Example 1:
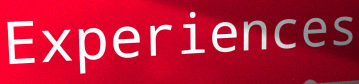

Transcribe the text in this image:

Experiences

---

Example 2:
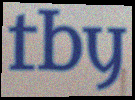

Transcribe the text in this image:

tby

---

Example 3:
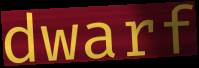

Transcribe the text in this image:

dwarf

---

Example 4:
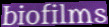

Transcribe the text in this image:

biofilms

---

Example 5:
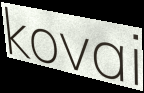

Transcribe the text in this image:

kovai